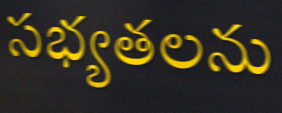
సభ్యతలను